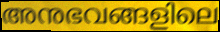
അനുഭവങ്ങളിലെ